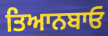
ਤਿਆਨਬਾਓ